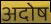
अदोष